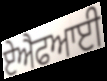
ਏਐਫਆਈ